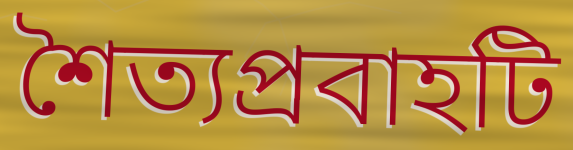
শৈত্যপ্রবাহটি